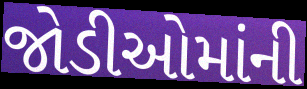
જોડીઓમાંની